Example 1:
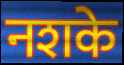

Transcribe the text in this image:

नशके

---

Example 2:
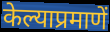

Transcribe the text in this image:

केल्याप्रमाणें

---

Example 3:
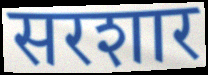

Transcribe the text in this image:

सरशार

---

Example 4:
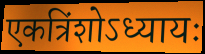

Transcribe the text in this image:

एकत्रिंशोऽध्यायः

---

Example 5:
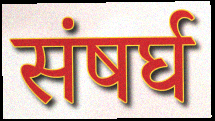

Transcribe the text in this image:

संषर्घ